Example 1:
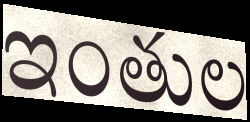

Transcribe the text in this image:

ఇంతుల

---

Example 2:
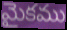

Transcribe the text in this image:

మైకము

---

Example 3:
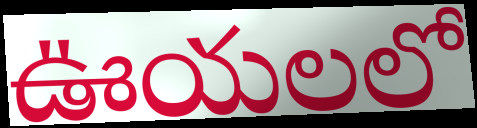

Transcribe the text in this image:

ఊయలలో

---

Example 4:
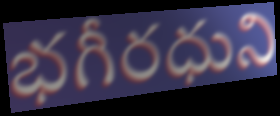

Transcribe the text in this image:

భగీరధుని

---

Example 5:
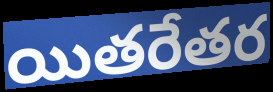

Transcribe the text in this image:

యితరేతర